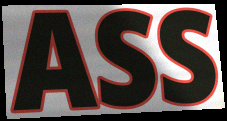
ASS